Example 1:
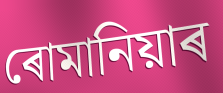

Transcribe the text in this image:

ৰোমানিয়াৰ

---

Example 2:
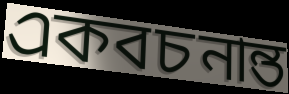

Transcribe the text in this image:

একবচনান্ত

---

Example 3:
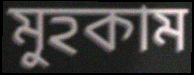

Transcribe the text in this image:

মুহকাম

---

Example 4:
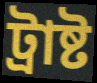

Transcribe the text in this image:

ট্ৰাষ্ট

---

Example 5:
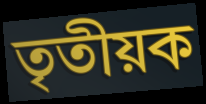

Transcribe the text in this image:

তৃতীয়ক